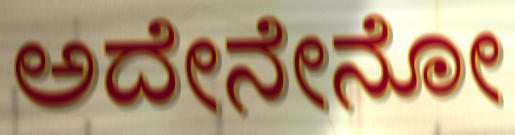
ಅದೇನೇನೋ